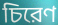
চিরেণ